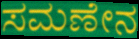
ಸಮಣೇನ